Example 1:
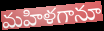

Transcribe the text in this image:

మహిళగానూ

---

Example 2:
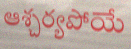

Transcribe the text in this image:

ఆశ్చర్యపోయే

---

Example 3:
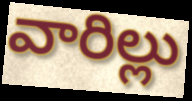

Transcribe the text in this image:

వారిల్లు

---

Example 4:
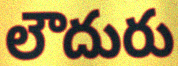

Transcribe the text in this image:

లౌదురు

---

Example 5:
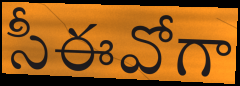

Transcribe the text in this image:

సీఈవోగా